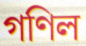
গণিল